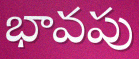
భావపు